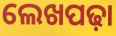
ଲେଖପଢ଼ା